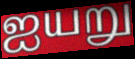
ஐயறு